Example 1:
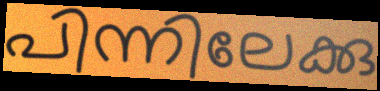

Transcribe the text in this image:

പിന്നിലേക്കു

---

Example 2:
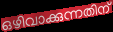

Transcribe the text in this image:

ഒഴിവാക്കുന്നതിന്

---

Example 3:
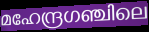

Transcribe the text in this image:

മഹേന്ദ്രഗഞ്ചിലെ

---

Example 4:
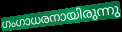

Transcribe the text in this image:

ഗംഗാധരനായിരുന്നു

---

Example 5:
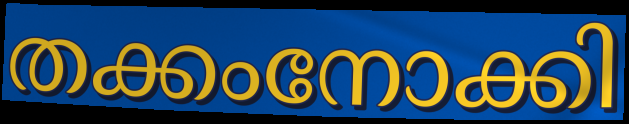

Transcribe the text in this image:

തക്കംനോക്കി